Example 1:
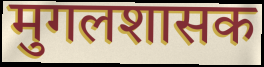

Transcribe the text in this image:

मुगलशासक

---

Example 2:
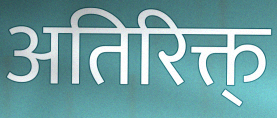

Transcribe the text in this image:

अतिरिक्त्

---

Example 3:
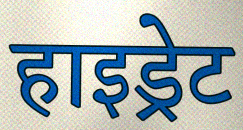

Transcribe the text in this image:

हाइड्रेट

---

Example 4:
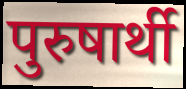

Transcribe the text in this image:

पुरुषार्थी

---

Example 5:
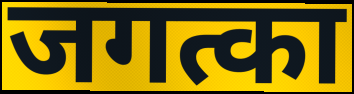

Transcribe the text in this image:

जगत्का